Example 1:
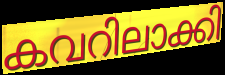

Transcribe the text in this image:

കവറിലാക്കി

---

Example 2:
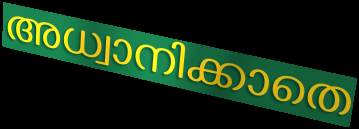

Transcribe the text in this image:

അധ്വാനിക്കാതെ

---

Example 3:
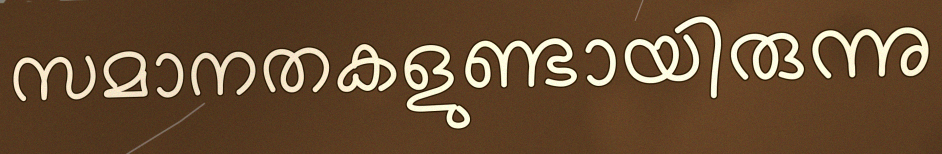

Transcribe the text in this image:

സമാനതകളുണ്ടായിരുന്നു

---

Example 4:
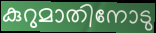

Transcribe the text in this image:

കുറുമാതിനോടു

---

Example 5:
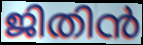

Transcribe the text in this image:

ജിതിൻ